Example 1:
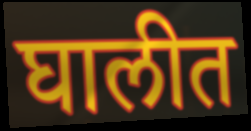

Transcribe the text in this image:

घालीत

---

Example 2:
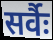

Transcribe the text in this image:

सर्वैः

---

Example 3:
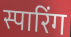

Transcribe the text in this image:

स्पारिंग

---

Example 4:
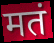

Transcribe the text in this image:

मतं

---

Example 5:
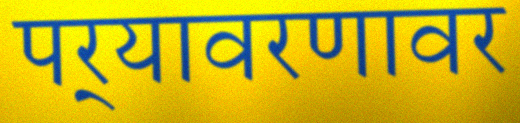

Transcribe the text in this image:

पर्यावरणावर